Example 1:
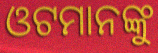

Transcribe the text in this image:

ଓଟମାନଙ୍କୁ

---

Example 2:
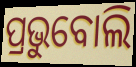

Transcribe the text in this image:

ପ୍ରଭୁବୋଲି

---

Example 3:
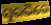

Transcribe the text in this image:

ସୁରଭିରେ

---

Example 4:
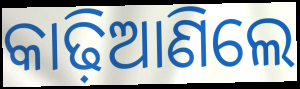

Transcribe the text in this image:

କାଢ଼ିଆଣିଲେ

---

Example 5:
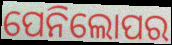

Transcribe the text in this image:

ପେନିଲୋପର